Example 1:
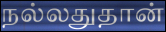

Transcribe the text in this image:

நல்லதுதான்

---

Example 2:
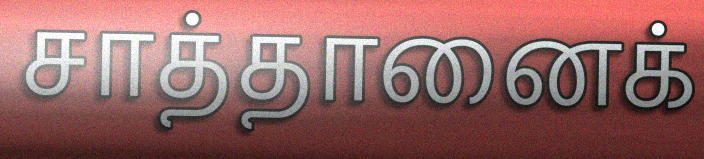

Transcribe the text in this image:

சாத்தானைக்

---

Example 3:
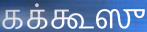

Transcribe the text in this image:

கக்கூஸு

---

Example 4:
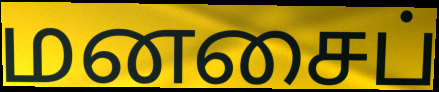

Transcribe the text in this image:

மனசைப்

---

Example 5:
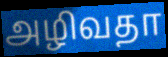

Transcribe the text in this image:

அழிவதா